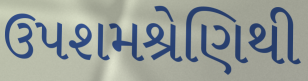
ઉપશમશ્રેણિથી